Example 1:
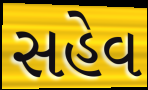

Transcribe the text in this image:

સહેવ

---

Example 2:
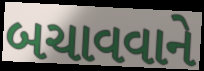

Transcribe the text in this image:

બચાવવાને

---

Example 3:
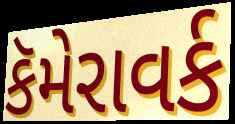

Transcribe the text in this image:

કૅમેરાવર્ક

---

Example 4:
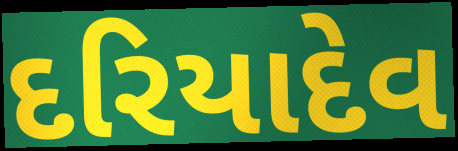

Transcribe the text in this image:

દરિયાદેવ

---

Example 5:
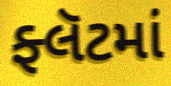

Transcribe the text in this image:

ફ્લૅટમાં